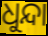
ଧୁନ୍ଦା